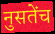
नुसतेंच